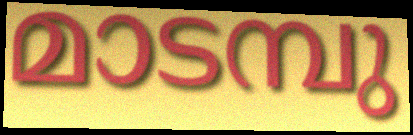
മാടമ്പു